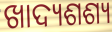
ଖାଦ୍ୟଶଶ୍ୟ